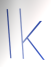
lk